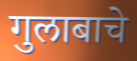
गुलाबाचे